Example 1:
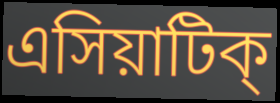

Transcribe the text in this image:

এসিয়াটিক্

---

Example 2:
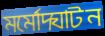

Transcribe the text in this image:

মর্মোদ্ঘাটন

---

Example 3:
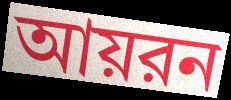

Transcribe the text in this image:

আয়রন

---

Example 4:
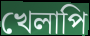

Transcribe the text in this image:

খেলাপি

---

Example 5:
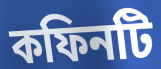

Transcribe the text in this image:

কফিনটি